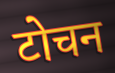
टोचन